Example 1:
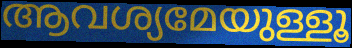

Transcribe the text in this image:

ആവശ്യമേയുള്ളൂ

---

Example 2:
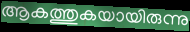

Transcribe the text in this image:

ആകത്തുകയായിരുന്നു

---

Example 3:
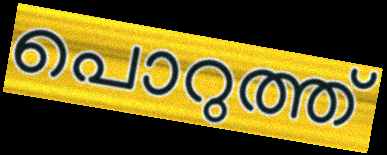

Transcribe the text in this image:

പൊറുത്ത്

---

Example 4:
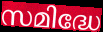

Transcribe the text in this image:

സമിദ്ധേ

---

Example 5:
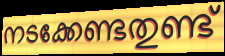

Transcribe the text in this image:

നടക്കേണ്ടതുണ്ട്